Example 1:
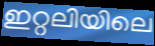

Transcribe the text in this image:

ഇറ്റലിയിലെ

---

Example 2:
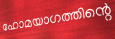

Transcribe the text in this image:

ഹോമയാഗത്തിന്റെ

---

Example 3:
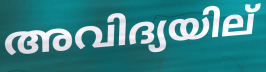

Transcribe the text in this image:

അവിദ്യയില്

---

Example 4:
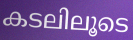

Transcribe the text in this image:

കടലിലൂടെ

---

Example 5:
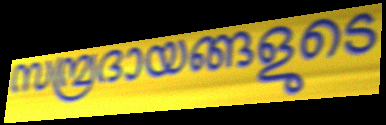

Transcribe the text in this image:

സമ്പ്രദായങ്ങളുടെ